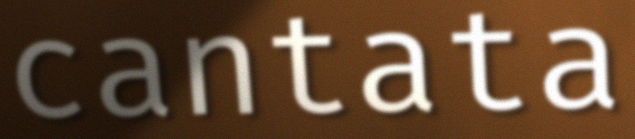
cantata